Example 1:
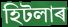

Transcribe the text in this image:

হিটলাৰ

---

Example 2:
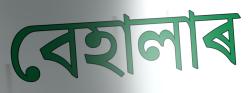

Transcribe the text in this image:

বেহালাৰ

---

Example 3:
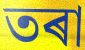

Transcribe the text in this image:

তৰা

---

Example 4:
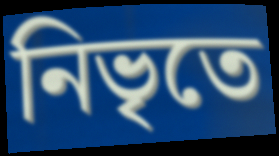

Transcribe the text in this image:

নিভৃতে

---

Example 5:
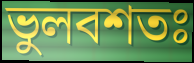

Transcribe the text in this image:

ভুলবশতঃ